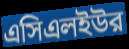
এসিএলইউর